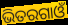
ଭିତରଗାଓଁ